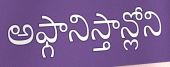
అఫ్గానిస్తాన్లోని